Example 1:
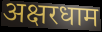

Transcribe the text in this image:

अक्षरधाम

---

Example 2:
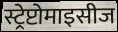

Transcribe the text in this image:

स्ट्रेप्टोमाइसीज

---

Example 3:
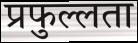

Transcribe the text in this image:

प्रफुल्लता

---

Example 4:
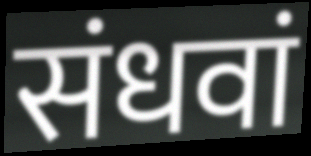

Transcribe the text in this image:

संधवां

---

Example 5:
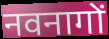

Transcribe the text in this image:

नवनागों